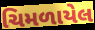
ચિમળાયેલ